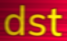
dst